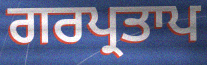
ਗਰਪ੍ਰਤਾਪ